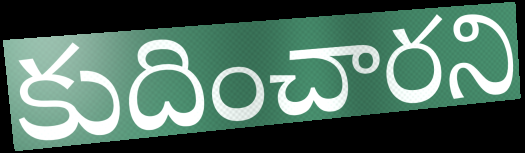
కుదించారని